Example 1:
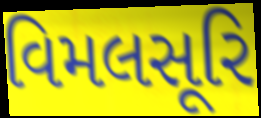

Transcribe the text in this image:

વિમલસૂરિ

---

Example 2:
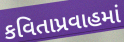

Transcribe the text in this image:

કવિતાપ્રવાહમાં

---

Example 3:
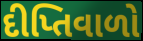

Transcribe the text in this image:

દીપ્તિવાળો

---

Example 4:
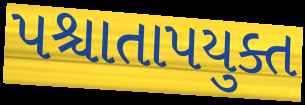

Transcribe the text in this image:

પશ્ચાતાપયુક્ત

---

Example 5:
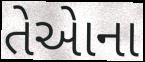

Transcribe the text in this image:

તેએાના